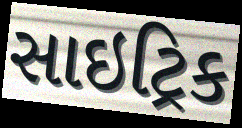
સાઇટ્રિક